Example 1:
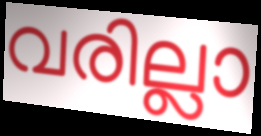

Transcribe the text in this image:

വരില്ലാ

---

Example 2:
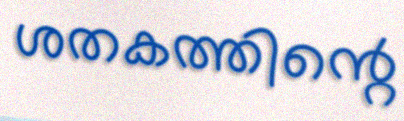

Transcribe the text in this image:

ശതകത്തിന്റെ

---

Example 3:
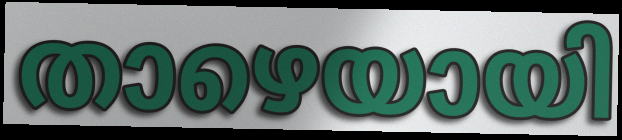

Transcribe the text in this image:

താഴെയായി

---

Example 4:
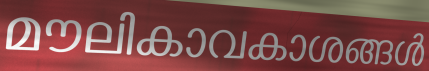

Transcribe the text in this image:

മൗലികാവകാശങ്ങൾ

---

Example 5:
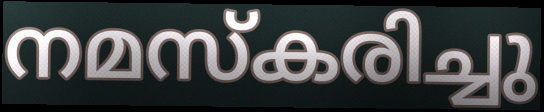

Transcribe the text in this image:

നമസ്കരിച്ചു